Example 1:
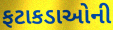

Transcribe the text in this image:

ફટાકડાઓની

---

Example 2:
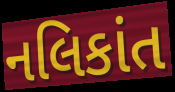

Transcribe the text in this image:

નલિકાંત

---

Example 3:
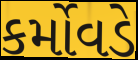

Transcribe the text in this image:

કર્મોવડે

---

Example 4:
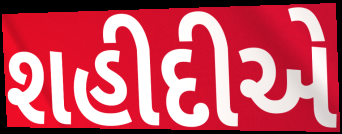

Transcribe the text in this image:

શહીદીએ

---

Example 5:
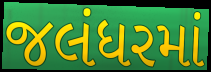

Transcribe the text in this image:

જલંધરમાં